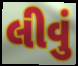
લીવું